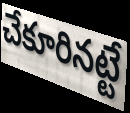
చేకూరినట్టే